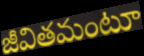
జీవితమంటూ